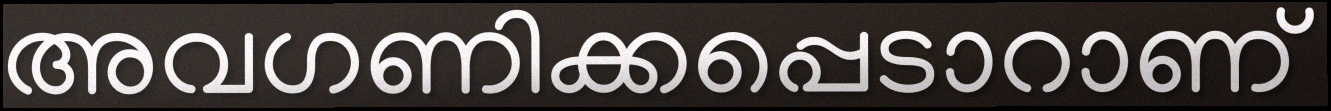
അവഗണിക്കപ്പെടാറാണ്